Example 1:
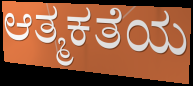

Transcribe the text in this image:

ಆತ್ಮಕತೆಯ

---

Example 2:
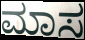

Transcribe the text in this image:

ಮಾಸ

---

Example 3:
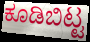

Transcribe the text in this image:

ಕೂಡಿಬಿಟ್ಟ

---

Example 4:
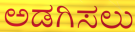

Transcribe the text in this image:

ಅಡಗಿಸಲು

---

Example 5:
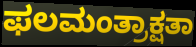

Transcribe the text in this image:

ಫಲಮಂತ್ರಾಕ್ಷತಾ